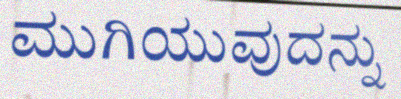
ಮುಗಿಯುವುದನ್ನು